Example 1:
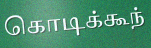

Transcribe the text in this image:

கொடிக்கூந்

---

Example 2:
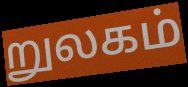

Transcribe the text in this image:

றுலகம்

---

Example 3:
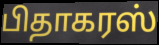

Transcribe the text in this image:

பிதாகரஸ்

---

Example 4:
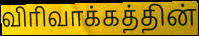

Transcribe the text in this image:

விரிவாக்கத்தின்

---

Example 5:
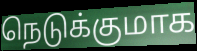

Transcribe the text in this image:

நெடுக்குமாக